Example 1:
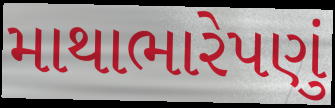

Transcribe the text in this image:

માથાભારેપણું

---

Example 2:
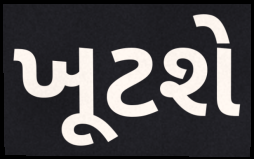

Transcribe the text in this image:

ખૂટશે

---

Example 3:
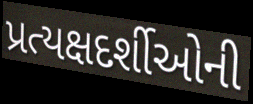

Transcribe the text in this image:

પ્રત્યક્ષદર્શીઓની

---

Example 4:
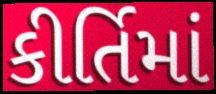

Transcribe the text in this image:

કીર્તિમાં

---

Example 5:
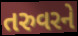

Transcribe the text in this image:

તરુવરને